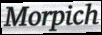
Morpich